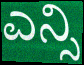
ಎನ್ಸಿ